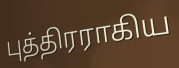
புத்திரராகிய